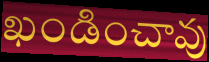
ఖండించావు